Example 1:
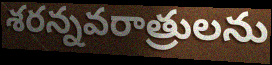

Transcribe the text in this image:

శరన్నవరాత్రులను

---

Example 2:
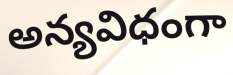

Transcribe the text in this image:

అన్యవిధంగా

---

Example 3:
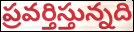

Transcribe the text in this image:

ప్రవర్తిస్తున్నది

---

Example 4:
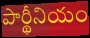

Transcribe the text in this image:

పార్థీనియం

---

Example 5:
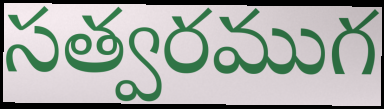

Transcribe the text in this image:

సత్వరముగ